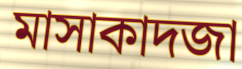
মাসাকাদজা